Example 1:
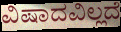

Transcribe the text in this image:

ವಿಷಾದವಿಲ್ಲದೆ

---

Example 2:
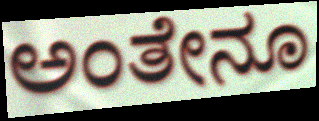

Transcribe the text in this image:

ಅಂತೇನೂ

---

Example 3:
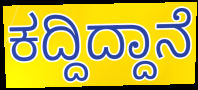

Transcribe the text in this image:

ಕದ್ದಿದ್ದಾನೆ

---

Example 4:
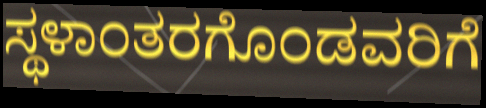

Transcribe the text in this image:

ಸ್ಥಳಾಂತರಗೊಂಡವರಿಗೆ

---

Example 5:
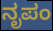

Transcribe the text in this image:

ನೃಪಂ